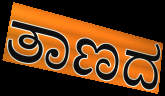
ತಾಣದ